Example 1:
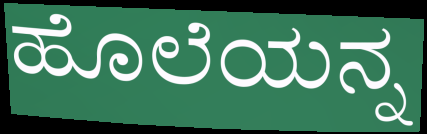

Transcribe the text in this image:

ಹೊಲೆಯನ್ನ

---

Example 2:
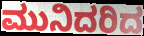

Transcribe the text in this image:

ಮುನಿದರಿದ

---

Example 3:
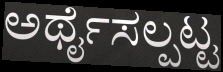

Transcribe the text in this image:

ಅರ್ಥೈಸಲ್ಪಟ್ಟ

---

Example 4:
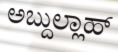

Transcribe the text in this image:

ಅಬ್ದುಲ್ಲಾಹ್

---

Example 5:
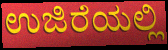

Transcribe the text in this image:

ಉಜಿರೆಯಲ್ಲಿ